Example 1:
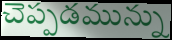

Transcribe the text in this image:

చెప్పడమున్ను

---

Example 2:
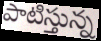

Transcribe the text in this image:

పాటిస్తున్న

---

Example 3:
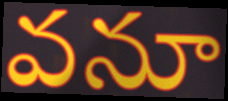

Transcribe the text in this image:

వనూ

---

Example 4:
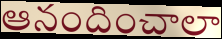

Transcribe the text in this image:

ఆనందించాలా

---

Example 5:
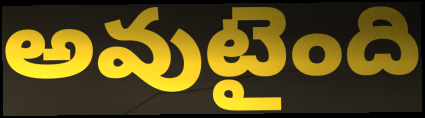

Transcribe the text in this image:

అవుటైంది